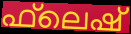
ഫ്‌ലെഷ്